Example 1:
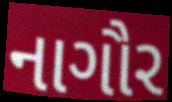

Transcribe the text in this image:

નાગૌર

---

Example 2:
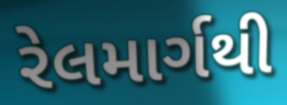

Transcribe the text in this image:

રેલમાર્ગથી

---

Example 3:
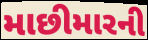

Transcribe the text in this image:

માછીમારની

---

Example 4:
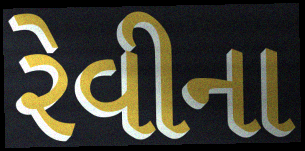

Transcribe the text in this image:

રેવીના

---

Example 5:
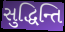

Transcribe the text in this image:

સુદ્ધિન્તિ